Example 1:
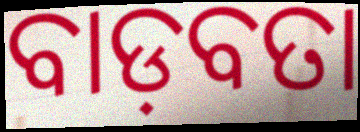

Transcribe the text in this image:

ବାଡ଼ବତା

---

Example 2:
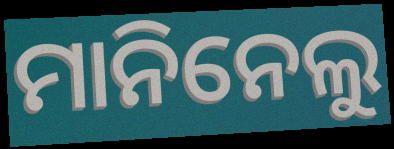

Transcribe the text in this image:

ମାନିନେଲୁ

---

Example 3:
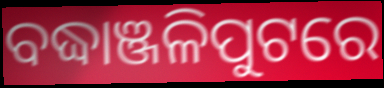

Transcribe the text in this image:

ବଦ୍ଧାଞ୍ଜଳିପୁଟରେ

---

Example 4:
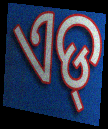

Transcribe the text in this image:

ଏଡ୍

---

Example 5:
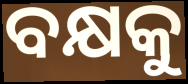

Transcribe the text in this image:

ବକ୍ଷକୁ